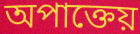
অপাক্তেয়